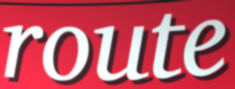
route